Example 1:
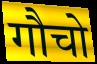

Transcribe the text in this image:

गौचो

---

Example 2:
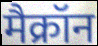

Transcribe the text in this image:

मैक्रॉन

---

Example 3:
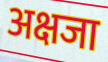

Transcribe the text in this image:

अक्षजा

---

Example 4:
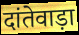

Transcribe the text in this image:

दांतेवाड़ा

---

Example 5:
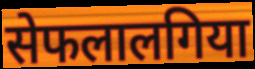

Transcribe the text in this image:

सेफलालगिया